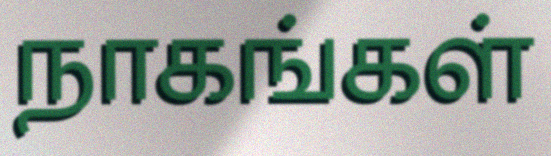
நாகங்கள்